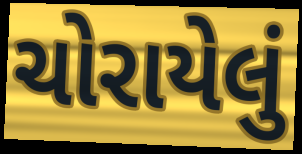
ચોરાયેલું